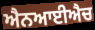
ਐਨਆਈਐਚ